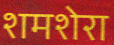
शमशेरा